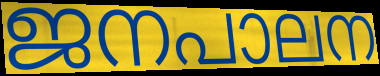
ജനപാലന